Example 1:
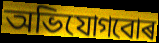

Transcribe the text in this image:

অভিযোগবোৰ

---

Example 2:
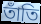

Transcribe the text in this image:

তাঁতি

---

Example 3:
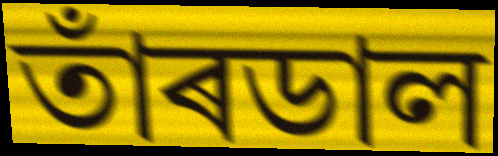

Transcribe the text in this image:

তাঁৰডাল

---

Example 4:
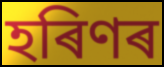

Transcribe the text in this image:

হৰিণৰ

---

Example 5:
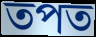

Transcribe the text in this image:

তপত